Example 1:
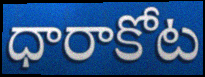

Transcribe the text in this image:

ధారాకోట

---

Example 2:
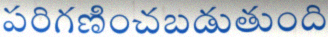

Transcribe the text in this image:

పరిగణించబడుతుంది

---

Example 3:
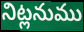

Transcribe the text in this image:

నిట్లనుము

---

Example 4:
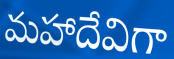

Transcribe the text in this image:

మహాదేవిగా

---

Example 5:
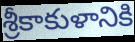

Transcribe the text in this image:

శ్రీకాకుళానికి